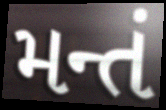
મન્તં